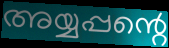
അയ്യപ്പന്റെ